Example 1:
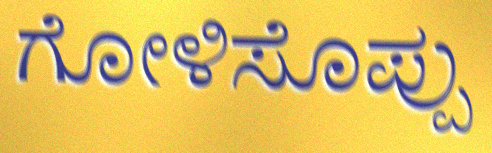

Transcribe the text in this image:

ಗೋಳಿಸೊಪ್ಪು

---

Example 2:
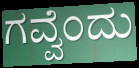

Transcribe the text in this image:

ಗವ್ವೆಂದು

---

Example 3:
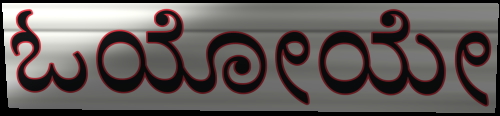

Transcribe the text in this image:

ಓಯೋಯೇ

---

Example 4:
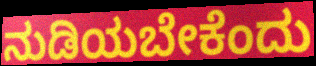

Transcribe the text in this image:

ನುಡಿಯಬೇಕೆಂದು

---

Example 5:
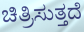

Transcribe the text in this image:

ಚಿತ್ರಿಸುತ್ತದೆ